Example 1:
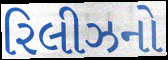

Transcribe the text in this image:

રિલીઝનો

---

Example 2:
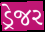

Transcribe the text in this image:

ડ્રેજર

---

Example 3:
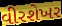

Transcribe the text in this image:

વીરશેખર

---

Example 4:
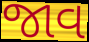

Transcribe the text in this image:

જાવ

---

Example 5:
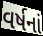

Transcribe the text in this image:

વર્ષનાં